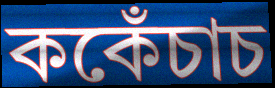
ককেঁচাচ